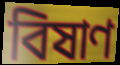
বিষাণ